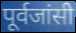
पूर्वजांसी